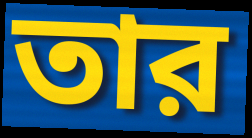
তার